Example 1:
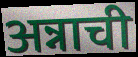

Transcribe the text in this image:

अन्नाची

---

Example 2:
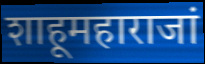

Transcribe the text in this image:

शाहूमहाराजां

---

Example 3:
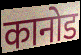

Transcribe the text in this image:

कानोड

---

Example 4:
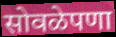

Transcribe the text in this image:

सोवळेपणा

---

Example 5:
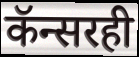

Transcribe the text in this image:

कॅन्सरही